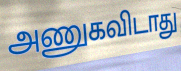
அணுகவிடாது